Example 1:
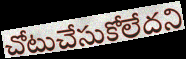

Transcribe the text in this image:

చోటుచేసుకోలేదని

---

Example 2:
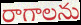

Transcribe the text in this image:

రాగాలను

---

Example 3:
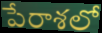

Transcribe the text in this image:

పేరాశలో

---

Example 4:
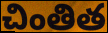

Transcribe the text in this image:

చింతిత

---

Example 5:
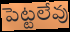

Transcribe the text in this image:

పెట్టలేవు